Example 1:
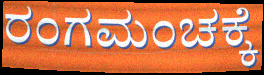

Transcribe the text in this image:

ರಂಗಮಂಚಕ್ಕೆ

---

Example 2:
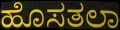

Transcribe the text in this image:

ಹೊಸತಲಾ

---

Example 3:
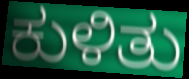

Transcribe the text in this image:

ಕುಳಿತು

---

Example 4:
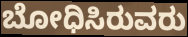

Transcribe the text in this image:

ಬೋಧಿಸಿರುವರು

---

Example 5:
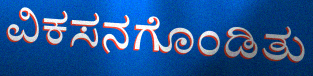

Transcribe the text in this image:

ವಿಕಸನಗೊಂಡಿತು